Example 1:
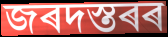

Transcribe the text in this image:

জৰদস্তৰৰ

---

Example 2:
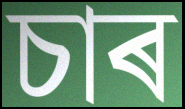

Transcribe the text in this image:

চাৰ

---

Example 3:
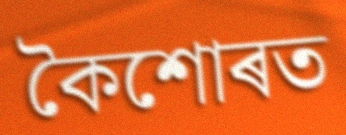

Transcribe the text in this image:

কৈশোৰত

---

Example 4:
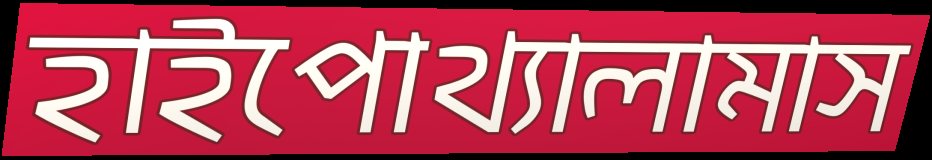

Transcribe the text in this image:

হাইপোথ্যালামাস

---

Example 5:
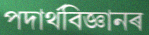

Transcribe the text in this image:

পদাৰ্থবিজ্ঞানৰ